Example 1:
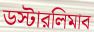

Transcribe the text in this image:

ডস্টারলিমাব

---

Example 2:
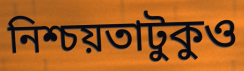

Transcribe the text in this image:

নিশ্চয়তাটুকুও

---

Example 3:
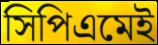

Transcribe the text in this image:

সিপিএমেই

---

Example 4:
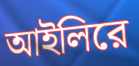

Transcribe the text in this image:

আইলিরে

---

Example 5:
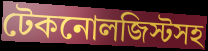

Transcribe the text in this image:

টেকনোলজিস্টসহ